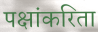
पक्षांकरिता